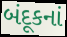
બંદૂકનાં